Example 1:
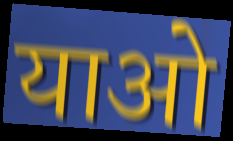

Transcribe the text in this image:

याओ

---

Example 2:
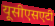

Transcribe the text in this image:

यूसीएसएटी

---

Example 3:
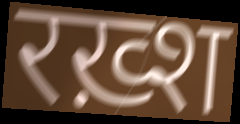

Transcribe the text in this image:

रख़्श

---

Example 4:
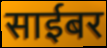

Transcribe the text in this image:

साईबर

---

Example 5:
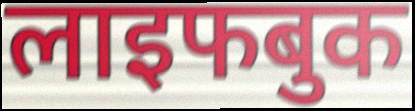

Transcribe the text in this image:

लाइफबुक